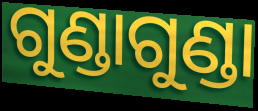
ଗୁଣ୍ଡାଗୁଣ୍ଡା